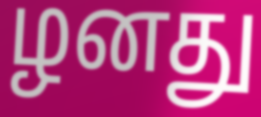
ழனது